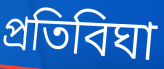
প্রতিবিঘা